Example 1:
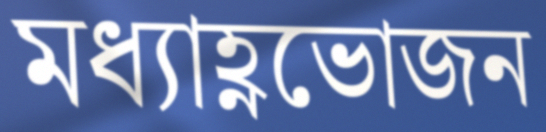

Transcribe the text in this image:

মধ্যাহ্ণভোজন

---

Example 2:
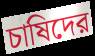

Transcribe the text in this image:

চাষিদের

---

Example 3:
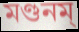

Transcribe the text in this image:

মণ্ডনম্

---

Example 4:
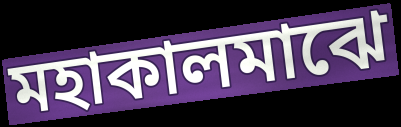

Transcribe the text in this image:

মহাকালমাঝে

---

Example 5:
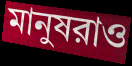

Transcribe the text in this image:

মানুষরাও